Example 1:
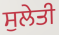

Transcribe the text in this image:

ਸੁਲੇਤੀ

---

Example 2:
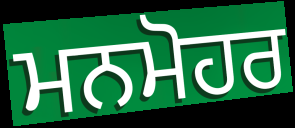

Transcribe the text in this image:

ਮਨਮੋਹਰ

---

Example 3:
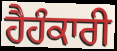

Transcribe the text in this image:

ਹੈਹੰਕਾਰੀ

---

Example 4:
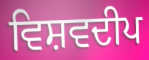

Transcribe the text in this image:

ਵਿਸ਼ਵਦੀਪ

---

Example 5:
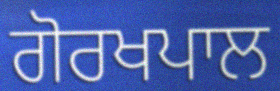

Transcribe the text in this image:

ਗੋਰਖਪਾਲ